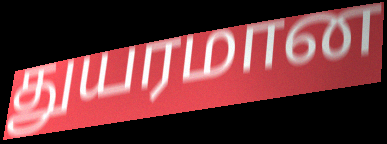
துயரமான